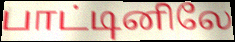
பாட்டினிலே